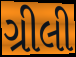
ગ્રીલી